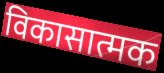
विकासात्मक